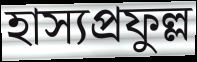
হাস্যপ্রফুল্ল